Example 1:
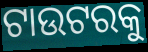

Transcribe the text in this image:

ଟାଉଟରକୁ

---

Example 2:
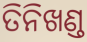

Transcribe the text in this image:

ତିନିଖଣ୍ଡ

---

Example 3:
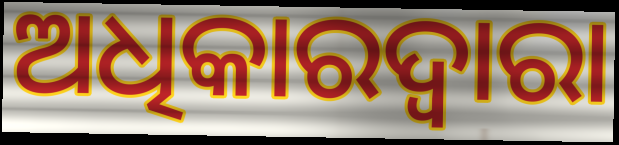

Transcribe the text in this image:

ଅଧିକାରଦ୍ୱାରା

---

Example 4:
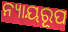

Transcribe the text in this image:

ନ୍ୟାୟରୂପ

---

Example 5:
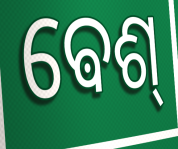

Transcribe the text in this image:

ଵେଶ୍